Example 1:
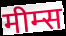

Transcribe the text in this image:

मीम्स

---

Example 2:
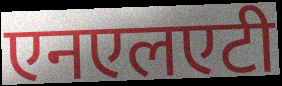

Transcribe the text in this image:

एनएलएटी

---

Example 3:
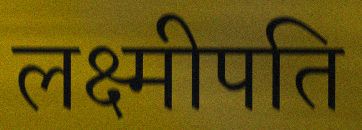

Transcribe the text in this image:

लक्ष्मीपति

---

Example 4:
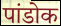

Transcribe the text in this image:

पांडोक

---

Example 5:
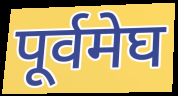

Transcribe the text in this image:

पूर्वमेघ